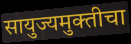
सायुज्यमुक्तीचा